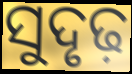
ସୁଦୃଢ଼